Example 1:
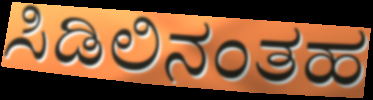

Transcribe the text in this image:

ಸಿಡಿಲಿನಂತಹ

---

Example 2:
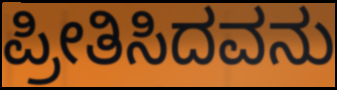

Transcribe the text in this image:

ಪ್ರೀತಿಸಿದವನು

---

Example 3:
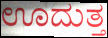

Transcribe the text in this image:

ಊದುತ್ತ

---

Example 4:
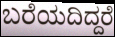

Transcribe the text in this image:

ಬರೆಯದಿದ್ದರೆ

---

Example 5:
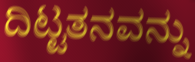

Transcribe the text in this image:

ದಿಟ್ಟತನವನ್ನು